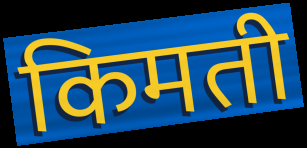
किमती